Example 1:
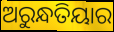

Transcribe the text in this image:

ଅରୁନ୍ଧତିୟାର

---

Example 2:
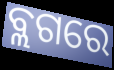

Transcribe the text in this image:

ବ୍ଲଗରେ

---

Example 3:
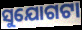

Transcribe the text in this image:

ସୁଯୋଗଟା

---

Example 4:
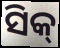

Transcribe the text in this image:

ସିକ୍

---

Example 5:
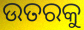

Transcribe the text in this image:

ଉତରକୁ